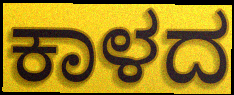
ಕಾಳದ